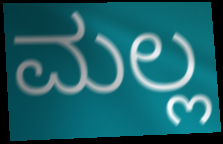
ಮಲ್ಲ